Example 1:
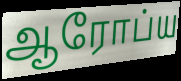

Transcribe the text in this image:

ஆரோப்ய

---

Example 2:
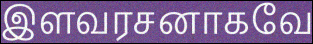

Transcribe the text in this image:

இளவரசனாகவே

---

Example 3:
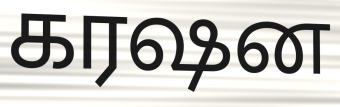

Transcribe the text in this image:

கரஷன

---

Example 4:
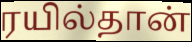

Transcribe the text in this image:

ரயில்தான்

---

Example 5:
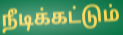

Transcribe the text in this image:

நீடிக்கட்டும்